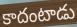
కాదంటాడు